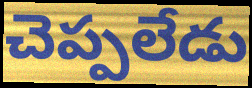
చెప్పలేడు